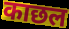
काछल